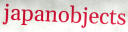
japanobjects